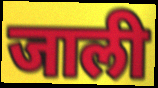
जाली